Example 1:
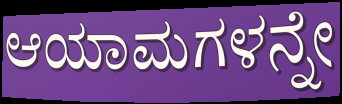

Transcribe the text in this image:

ಆಯಾಮಗಳನ್ನೇ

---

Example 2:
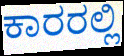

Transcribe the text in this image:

ಕಾರರಲ್ಲಿ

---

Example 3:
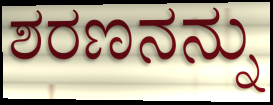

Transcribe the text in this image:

ಶರಣನನ್ನು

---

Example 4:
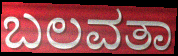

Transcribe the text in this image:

ಬಲವತಾ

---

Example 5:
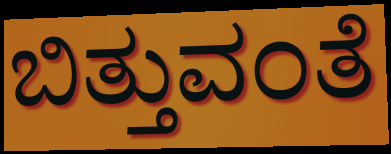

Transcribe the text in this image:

ಬಿತ್ತುವಂತೆ